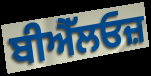
ਬੀਐੱਲਓਜ਼